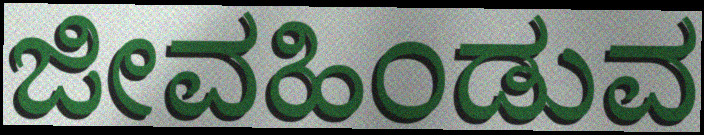
ಜೀವಹಿಂಡುವ